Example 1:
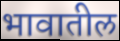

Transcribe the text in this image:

भावातील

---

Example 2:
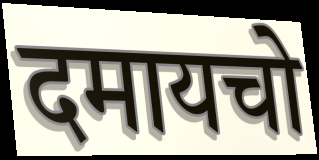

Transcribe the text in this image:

दमायचो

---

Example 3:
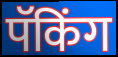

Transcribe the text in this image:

पॅकिंग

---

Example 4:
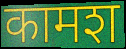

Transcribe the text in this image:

कामश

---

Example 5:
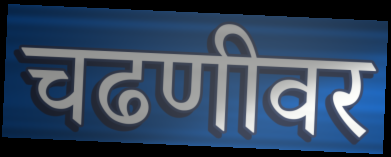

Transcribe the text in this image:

चढणीवर